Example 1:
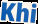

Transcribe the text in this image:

Khi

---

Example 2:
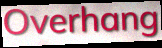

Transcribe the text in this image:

Overhang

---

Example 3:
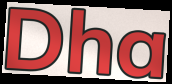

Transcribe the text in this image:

Dha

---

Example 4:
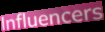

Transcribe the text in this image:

Influencers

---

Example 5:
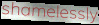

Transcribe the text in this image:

shamelessly